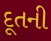
દૂતની